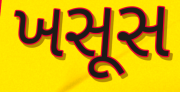
ખસૂસ